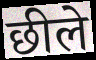
छीले